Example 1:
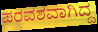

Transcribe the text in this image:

ಪರವಶವಾಗಿದ್ದ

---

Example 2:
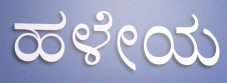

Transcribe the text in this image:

ಹಳೇಯ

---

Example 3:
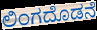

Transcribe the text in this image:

ಲಿಂಗದೊಡನೆ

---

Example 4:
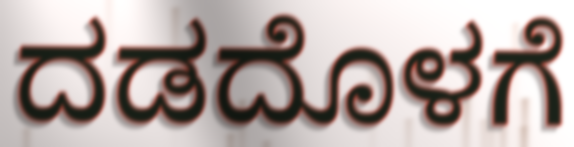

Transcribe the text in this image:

ದಡದೊಳಗೆ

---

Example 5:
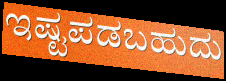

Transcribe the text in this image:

ಇಷ್ಟಪಡಬಹುದು